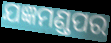
ଯଜ୍ଞମଣ୍ଡପର